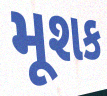
મૂશક